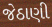
જેઠાણી